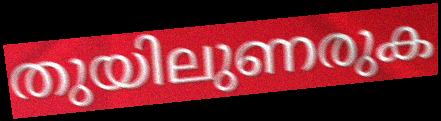
തുയിലുണരുക